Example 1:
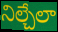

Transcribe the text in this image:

నిల్చేలా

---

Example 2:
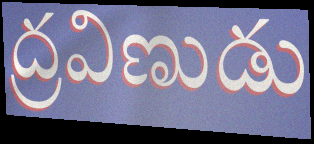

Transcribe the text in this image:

ద్రవిణుడు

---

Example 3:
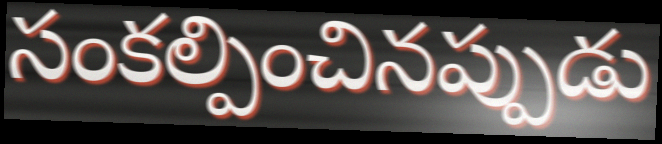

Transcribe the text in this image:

సంకల్పించినప్పుడు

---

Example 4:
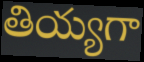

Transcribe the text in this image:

తియ్యగా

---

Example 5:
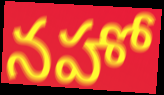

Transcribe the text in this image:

నహో